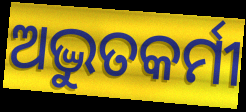
ଅଦ୍ଭୁତକର୍ମୀ